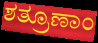
ಶತ್ರೂಣಾಂ